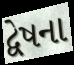
દ્વેષના